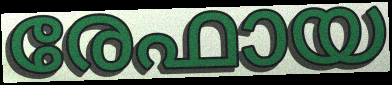
രേഫായ